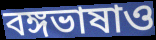
বঙ্গভাষাও